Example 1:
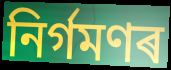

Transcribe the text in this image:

নিৰ্গমণৰ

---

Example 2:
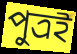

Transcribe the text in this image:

পুত্ৰই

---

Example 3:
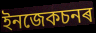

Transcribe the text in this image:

ইনজেকচনৰ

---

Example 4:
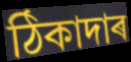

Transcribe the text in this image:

ঠিকাদাৰ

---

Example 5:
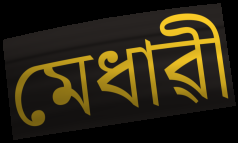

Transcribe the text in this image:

মেধাৱী